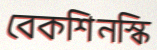
বেকশিনস্কি